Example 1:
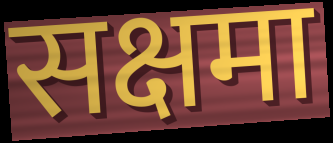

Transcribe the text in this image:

सक्षमा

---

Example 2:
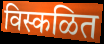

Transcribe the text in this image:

विस्कळित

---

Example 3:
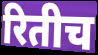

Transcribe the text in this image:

रितीच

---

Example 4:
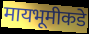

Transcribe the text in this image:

मायभूमीकडे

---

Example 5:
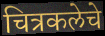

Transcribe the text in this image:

चित्रकलेचे